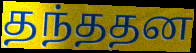
தந்ததன